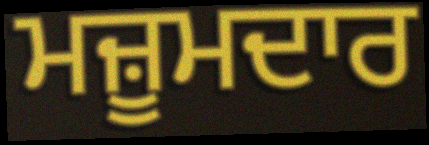
ਮਜ਼ੂਮਦਾਰ